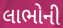
લાભોની